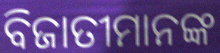
ବିଜାତୀମାନଙ୍କ